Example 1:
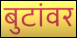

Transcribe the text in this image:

बुटांवर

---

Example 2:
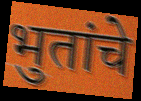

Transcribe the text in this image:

भुतांचे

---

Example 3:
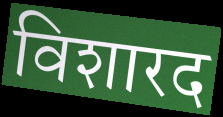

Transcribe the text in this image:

विशारद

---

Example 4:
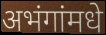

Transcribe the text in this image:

अभंगांमधे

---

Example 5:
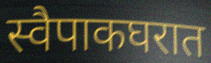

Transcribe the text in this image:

स्वैपाकघरात